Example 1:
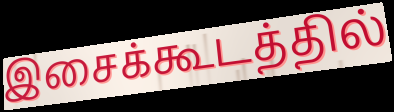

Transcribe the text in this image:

இசைக்கூடத்தில்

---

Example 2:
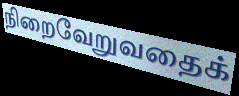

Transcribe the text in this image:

நிறைவேறுவதைக்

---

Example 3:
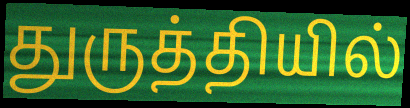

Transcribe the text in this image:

துருத்தியில்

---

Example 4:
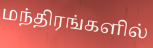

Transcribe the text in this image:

மந்திரங்களில்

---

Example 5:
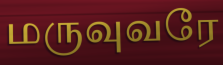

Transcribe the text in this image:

மருவுவரே